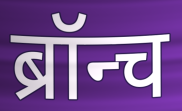
ब्रॉन्च